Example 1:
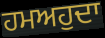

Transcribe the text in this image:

ਹਮਅਹੁਦਾ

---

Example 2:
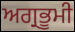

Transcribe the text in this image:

ਅਗ੍ਰਭੂਮੀ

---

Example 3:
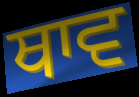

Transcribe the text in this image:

ਥਾਵ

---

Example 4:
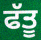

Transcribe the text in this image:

ਫੱਤੂ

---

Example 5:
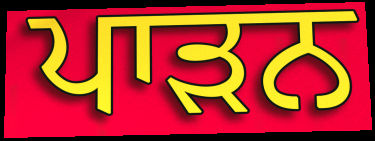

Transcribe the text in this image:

ਪਾੜਨ